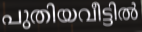
പുതിയവീട്ടിൽ